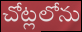
చోట్లలోను